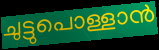
ചുട്ടുപൊള്ളാൻ